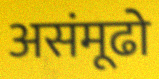
असंमूढो